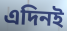
এদিনই